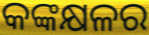
କଙ୍କକ୍ଷଳର